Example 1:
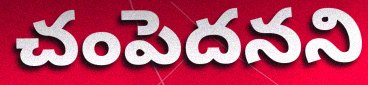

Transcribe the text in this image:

చంపెదనని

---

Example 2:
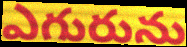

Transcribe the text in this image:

ఎగురును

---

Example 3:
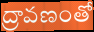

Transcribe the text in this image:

ద్రావణంతో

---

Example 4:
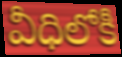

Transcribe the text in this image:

వీధిలోకీ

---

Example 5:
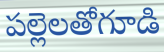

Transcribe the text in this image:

పల్లెలతోగూడి